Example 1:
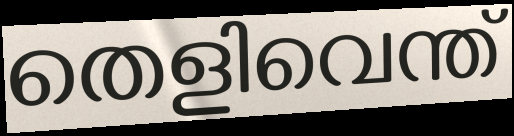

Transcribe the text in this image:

തെളിവെന്ത്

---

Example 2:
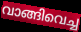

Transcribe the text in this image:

വാങ്ങിവെച്ച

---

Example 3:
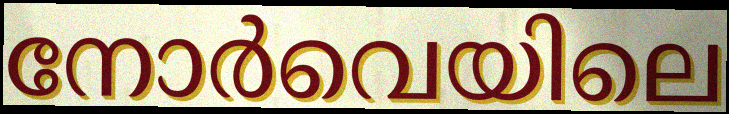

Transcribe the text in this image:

നോർവെയിലെ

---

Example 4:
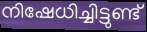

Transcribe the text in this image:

നിഷേധിച്ചിട്ടുണ്ട്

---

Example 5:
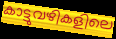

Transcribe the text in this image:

കാട്ടുവഴികളിലെ